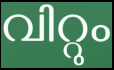
വിറ്റും